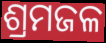
ଶ୍ରମଜଳ